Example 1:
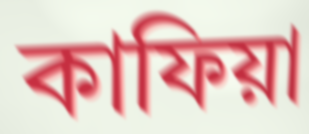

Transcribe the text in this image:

কাফিয়া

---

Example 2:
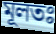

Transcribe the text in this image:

মূলতঃ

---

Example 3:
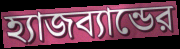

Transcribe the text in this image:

হ্যাজব্যান্ডের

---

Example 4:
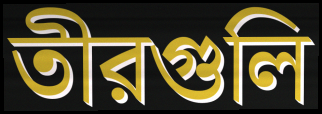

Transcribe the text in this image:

তীরগুলি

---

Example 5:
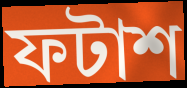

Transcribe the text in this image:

ফটাশ